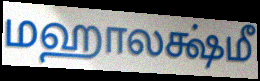
மஹாலக்ஷ்மீ